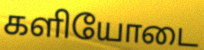
களியோடை